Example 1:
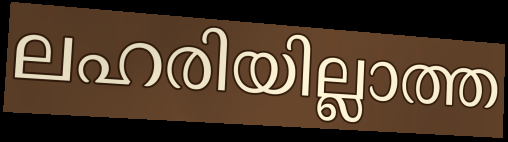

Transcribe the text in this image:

ലഹരിയില്ലാത്ത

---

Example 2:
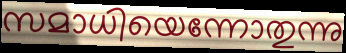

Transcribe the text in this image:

സമാധിയെന്നോതുന്നു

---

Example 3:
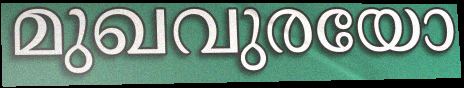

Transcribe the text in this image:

മുഖവുരയോ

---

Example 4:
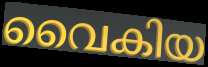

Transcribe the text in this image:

വൈകിയ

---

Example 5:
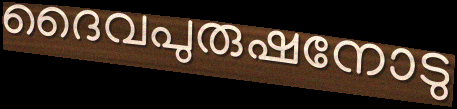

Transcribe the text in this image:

ദൈവപുരുഷനോടു